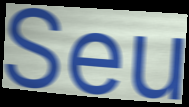
Seu